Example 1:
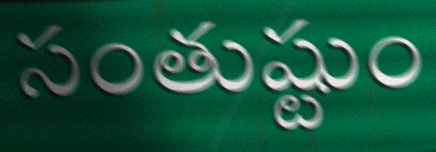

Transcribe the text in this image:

సంతుష్టుం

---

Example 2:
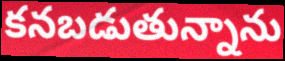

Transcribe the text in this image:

కనబడుతున్నాను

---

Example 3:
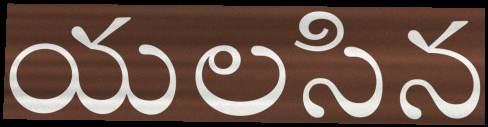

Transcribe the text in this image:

యలసిన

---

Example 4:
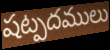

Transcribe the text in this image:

షట్పదములు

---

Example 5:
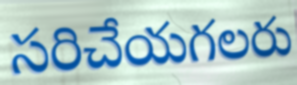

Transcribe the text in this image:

సరిచేయగలరు